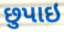
છુપાઇ